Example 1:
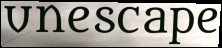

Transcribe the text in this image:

unescape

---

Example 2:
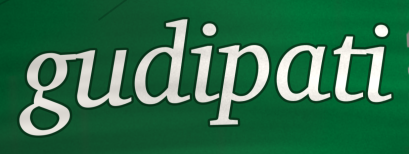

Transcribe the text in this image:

gudipati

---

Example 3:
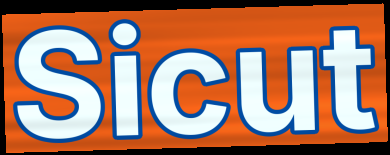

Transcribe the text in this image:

Sicut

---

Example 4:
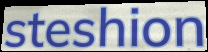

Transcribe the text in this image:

steshion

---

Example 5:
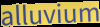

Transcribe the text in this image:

alluvium